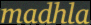
madhla